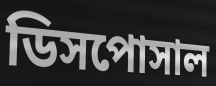
ডিসপোসাল